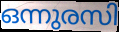
ഒന്നുരസി